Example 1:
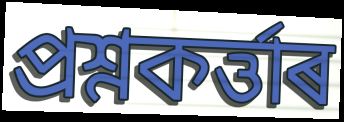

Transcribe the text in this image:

প্ৰশ্নকৰ্ত্তাৰ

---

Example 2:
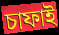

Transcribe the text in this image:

চাফাই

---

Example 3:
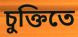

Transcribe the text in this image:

চুক্তিতে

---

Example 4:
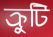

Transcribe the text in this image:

ক্ৰুটি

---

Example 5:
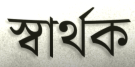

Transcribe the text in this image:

স্বাৰ্থক